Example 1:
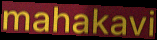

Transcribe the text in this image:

mahakavi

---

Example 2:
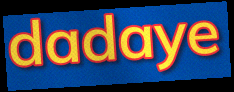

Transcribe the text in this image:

dadaye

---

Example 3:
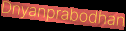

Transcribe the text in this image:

Dnyanprabodhan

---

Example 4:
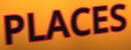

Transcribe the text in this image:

PLACES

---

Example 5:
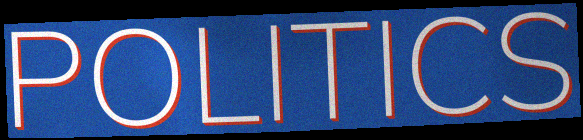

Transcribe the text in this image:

POLITICS